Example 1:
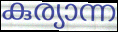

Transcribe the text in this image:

കുര്യാന്ന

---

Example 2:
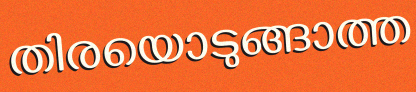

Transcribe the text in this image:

തിരയൊടുങ്ങാത്ത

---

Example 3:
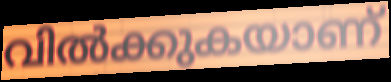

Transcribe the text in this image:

വിൽക്കുകയാണ്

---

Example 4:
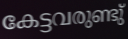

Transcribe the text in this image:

കേട്ടവരുണ്ടു്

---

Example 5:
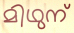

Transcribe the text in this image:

മിഥുന്